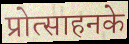
प्रोत्साहनके